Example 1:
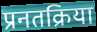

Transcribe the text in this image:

प्रनतक्रिया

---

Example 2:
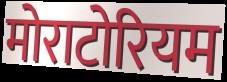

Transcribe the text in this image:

मोराटोरियम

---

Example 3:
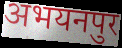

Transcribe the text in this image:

अभयनपुर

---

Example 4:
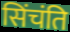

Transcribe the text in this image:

सिंचंति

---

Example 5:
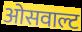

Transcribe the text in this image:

ओसवाल्ट